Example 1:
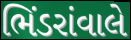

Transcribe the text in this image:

ભિંડરાંવાલે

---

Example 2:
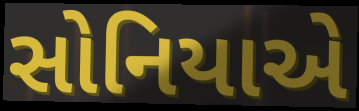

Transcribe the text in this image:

સોનિયાએ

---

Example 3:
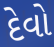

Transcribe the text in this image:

દેવો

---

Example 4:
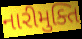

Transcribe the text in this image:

નારીમુક્તિ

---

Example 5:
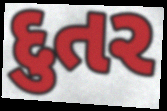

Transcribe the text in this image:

દુતર